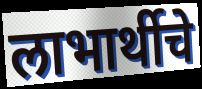
लाभार्थीचे